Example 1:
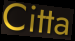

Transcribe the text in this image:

Citta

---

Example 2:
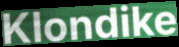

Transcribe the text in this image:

Klondike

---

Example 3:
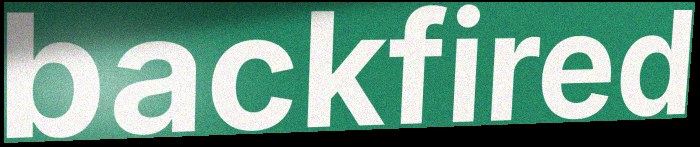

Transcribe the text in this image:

backfired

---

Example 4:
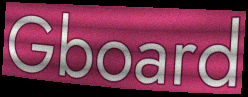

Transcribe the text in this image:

Gboard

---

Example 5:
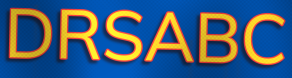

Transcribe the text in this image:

DRSABC